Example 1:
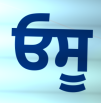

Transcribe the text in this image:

ਓਸੂ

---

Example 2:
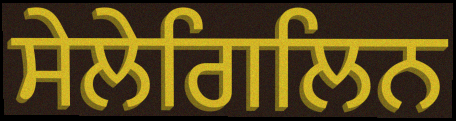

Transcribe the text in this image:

ਸੇਲੇਗਿਲਿਨ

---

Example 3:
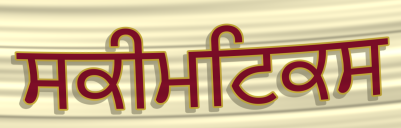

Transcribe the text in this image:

ਸਕੀਮਟਿਕਸ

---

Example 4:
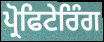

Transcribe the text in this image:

ਪ੍ਰੋਫਿਟੇਰਿੰਗ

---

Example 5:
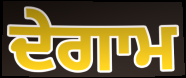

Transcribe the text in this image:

ਦੇਗਾਮ